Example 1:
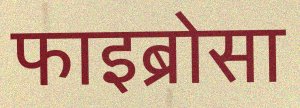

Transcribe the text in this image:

फाइब्रोसा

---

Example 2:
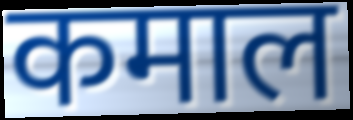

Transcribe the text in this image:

कमाल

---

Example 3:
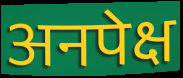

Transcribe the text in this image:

अनपेक्ष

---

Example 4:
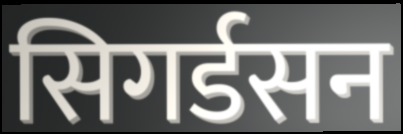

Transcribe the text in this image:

सिगर्डसन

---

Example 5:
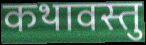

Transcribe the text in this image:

कथावस्‍तु